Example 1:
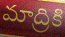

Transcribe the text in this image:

మాద్రికి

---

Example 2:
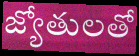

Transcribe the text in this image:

జ్యోతులతో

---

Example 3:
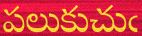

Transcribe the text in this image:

పలుకుచుఁ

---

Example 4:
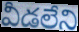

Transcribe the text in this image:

వీడలేని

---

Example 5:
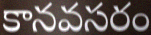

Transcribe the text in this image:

కానవసరం